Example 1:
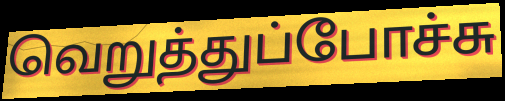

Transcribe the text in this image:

வெறுத்துப்போச்சு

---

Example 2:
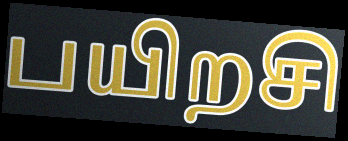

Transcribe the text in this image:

பயிறசி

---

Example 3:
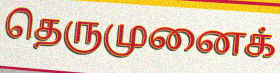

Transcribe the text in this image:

தெருமுனைக்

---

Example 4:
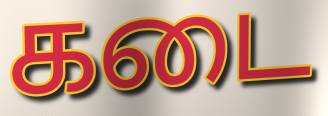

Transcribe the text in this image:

கடை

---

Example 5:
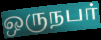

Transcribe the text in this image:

ஒருநபர்